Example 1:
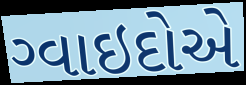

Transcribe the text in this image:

ગ્વાઇદોએ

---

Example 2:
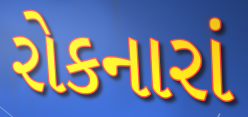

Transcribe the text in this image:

રોકનારાં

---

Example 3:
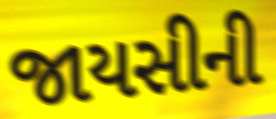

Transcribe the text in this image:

જાયસીની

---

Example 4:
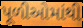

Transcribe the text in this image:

પૂળીઓમાંથી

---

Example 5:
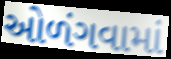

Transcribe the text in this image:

ઓળંગવામાં